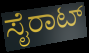
ಸೈರಾಟ್